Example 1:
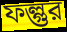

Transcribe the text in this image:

ফল্গুর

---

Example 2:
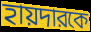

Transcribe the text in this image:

হায়দারকে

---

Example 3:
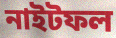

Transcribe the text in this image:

নাইটফল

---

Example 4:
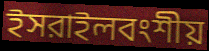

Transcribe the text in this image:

ইসরাইলবংশীয়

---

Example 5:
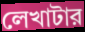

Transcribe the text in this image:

লেখাটার